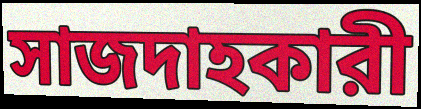
সাজদাহকারী